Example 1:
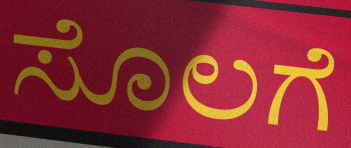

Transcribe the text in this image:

ಸೊಲಗೆ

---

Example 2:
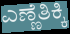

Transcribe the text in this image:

ಎಣ್ಣೆತಿಕ್ಕಿ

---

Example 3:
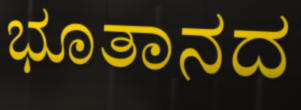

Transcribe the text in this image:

ಭೂತಾನದ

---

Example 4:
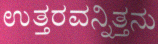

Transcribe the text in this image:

ಉತ್ತರವನ್ನಿತ್ತನು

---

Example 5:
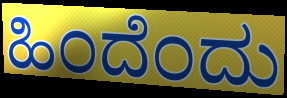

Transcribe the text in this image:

ಹಿಂದೆಂದು